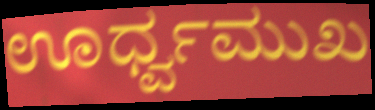
ಊರ್ಧ್ವಮುಖ